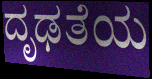
ದೃಢತೆಯ